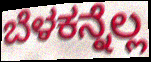
ಬೆಳಕನ್ನೆಲ್ಲ